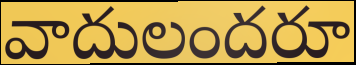
వాదులందరూ